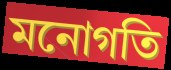
মনোগতি